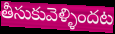
తీసుకువెళ్ళిందట